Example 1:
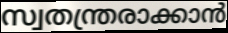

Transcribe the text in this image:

സ്വതന്ത്രരാക്കാൻ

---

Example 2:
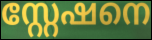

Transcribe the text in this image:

സ്റ്റേഷനെ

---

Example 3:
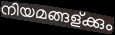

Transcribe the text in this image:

നിയമങ്ങള്ക്കും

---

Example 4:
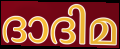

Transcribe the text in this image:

ദാദിമ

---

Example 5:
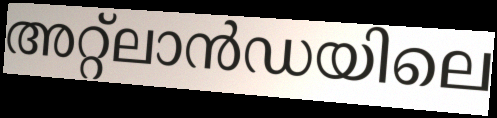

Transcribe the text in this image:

അറ്റ്ലാൻഡയിലെ